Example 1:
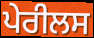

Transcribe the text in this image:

ਪੇਰੀਲਸ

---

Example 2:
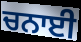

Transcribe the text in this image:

ਚਨਾਈ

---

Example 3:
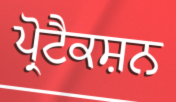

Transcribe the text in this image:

ਪ੍ਰੋਟੈਕਸ਼ਨ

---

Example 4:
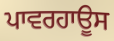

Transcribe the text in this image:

ਪਾਵਰਹਾਊਸ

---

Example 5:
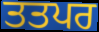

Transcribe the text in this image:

ਤਤਪਰ